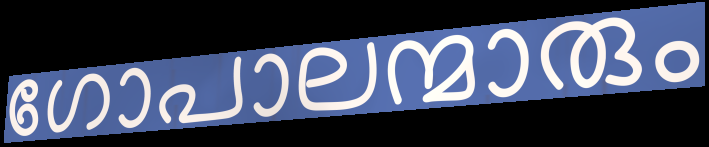
ഗോപാലന്മാരും